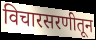
विचारसरणीतून